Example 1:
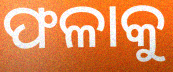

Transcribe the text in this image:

ଫଳାକୁ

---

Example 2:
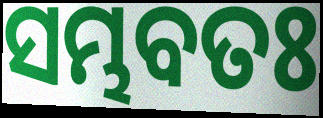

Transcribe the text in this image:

ସମ୍ଭବତଃ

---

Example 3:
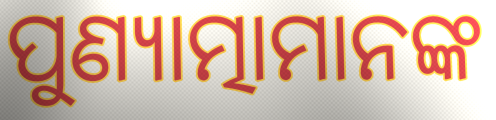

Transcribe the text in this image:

ପୁଣ୍ୟାତ୍ମାମାନଙ୍କ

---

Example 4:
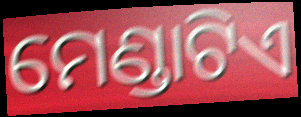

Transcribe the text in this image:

ମେଣ୍ଡାଟିଏ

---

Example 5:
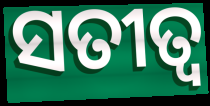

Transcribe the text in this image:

ସତୀତ୍ଵ